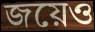
জয়েও